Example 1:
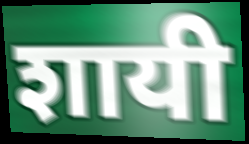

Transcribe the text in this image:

शायी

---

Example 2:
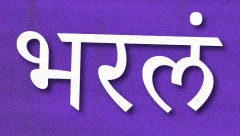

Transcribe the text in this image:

भरलं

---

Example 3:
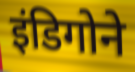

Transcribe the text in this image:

इंडिगोने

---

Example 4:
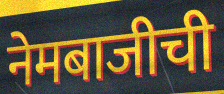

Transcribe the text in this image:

नेमबाजीची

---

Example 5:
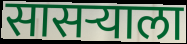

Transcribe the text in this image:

सासऱ्याला